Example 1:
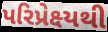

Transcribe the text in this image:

પરિપ્રેક્ષ્યથી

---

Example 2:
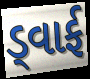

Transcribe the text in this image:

ડ્વાર્ફ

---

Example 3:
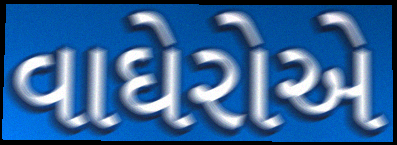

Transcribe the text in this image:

વાઘેરોએ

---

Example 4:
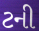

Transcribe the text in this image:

ટની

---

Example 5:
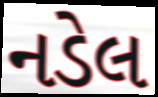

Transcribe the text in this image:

નડેલ